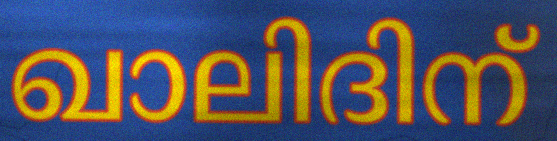
ഖാലിദിന്